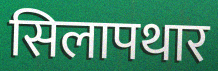
सिलापथार